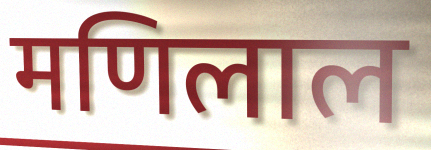
मणिलाल